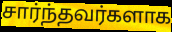
சார்ந்தவர்களாக